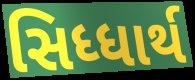
સિધ્ધાર્થ